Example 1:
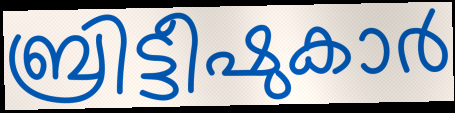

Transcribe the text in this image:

ബ്രിട്ടീഷുകാർ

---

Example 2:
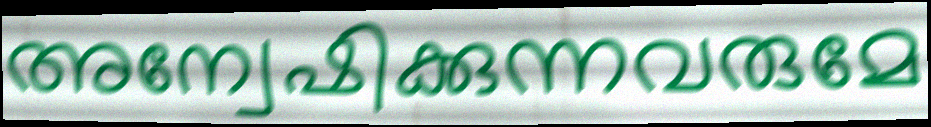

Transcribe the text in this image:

അന്വേഷിക്കുന്നവരുമേ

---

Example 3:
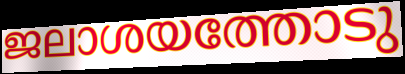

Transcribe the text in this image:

ജലാശയത്തോടു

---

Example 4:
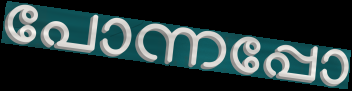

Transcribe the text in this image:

പോന്നപ്പോ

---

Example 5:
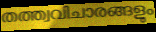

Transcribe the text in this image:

തത്ത്വവിചാരങ്ങളും